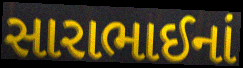
સારાભાઈનાં